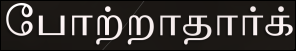
போற்றாதார்க்